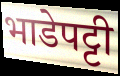
भाडेपट्टी